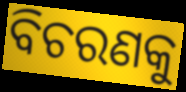
ବିଚରଣକୁ